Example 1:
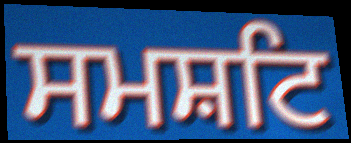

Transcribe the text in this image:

ਸਮਸ਼ਟਿ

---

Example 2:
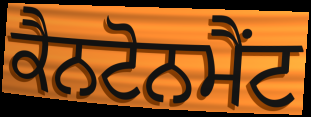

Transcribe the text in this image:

ਕੈਨਟੋਨਮੈਂਟ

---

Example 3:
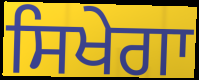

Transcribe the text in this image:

ਸਿਖੇਗਾ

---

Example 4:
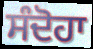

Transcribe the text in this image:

ਸੰਦੋਹਾ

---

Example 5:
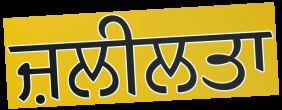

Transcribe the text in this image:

ਜ਼ਲੀਲਤਾ